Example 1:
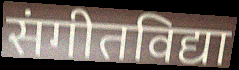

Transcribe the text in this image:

संगीतविद्या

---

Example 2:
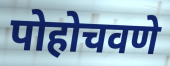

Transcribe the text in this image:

पोहोचवणे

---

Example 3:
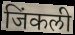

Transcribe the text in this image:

जिंकली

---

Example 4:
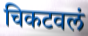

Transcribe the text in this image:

चिकटवलं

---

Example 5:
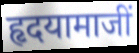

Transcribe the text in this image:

हृदयामाजीं